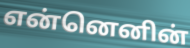
என்னெனின்